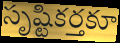
సృష్టికర్తకూ